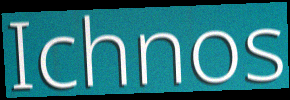
Ichnos